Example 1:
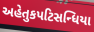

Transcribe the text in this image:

અહેતુકપટિસન્ધિયા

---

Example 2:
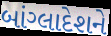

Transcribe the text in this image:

બાંગ્લાદેશને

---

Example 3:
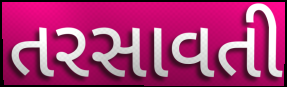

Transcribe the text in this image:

તરસાવતી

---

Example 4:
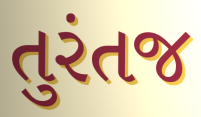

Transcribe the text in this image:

તુરંતજ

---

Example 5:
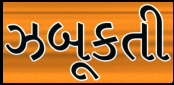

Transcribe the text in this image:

ઝબૂકતી